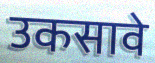
उकसावे